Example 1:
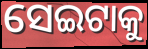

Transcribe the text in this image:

ସେଇଟାକୁ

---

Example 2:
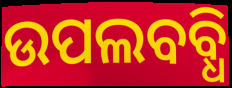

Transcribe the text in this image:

ଉପଲବବ୍ଧି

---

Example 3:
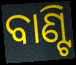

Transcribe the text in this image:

ବାଣ୍ଟି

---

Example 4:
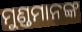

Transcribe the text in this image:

ମୁଣ୍ଡମାନଙ୍କ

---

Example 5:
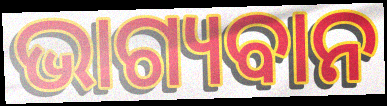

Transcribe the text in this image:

ଭାଗ୍ୟବାନ